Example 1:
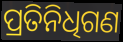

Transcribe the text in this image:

ପ୍ରତିନିଧିଗଣ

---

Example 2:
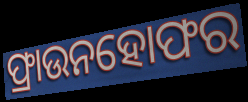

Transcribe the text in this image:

ଫ୍ରାଉନହୋଫର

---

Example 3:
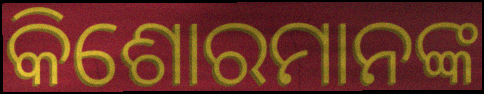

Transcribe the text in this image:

କିଶୋରମାନଙ୍କ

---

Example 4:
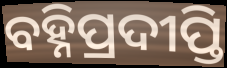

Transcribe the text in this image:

ବହ୍ନିପ୍ରଦୀପ୍ତି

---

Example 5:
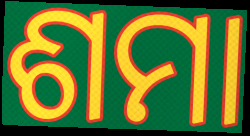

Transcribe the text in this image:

ଶମା